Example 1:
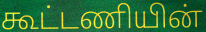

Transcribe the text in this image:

கூட்டணியின்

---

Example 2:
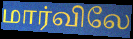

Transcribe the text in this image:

மார்விலே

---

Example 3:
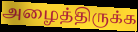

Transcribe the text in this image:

அழைத்திருக்க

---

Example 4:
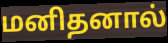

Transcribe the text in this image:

மனிதனால்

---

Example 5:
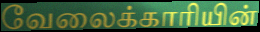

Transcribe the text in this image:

வேலைக்காரியின்